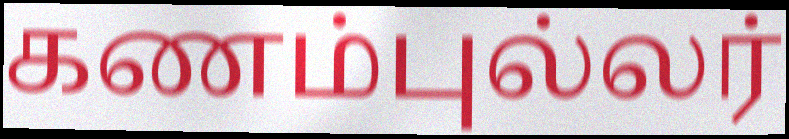
கணம்புல்லர்